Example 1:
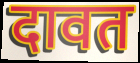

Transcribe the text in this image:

दावत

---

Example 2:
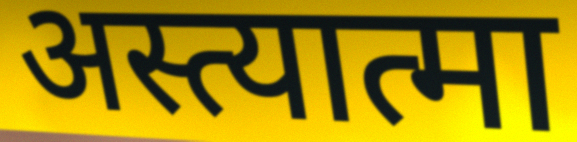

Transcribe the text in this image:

अस्त्यात्मा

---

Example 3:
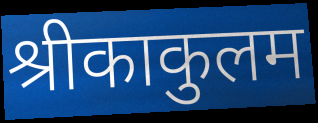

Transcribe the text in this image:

श्रीकाकुलम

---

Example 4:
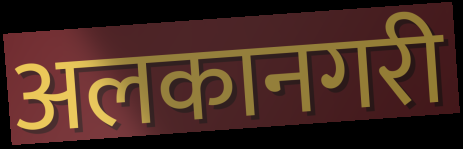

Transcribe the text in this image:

अलकानगरी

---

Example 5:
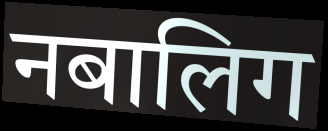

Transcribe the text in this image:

नबालिग